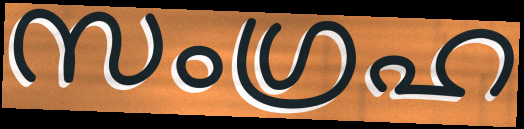
സംഗ്രഹ